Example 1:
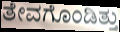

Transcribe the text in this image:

ತೇವಗೊಂಡಿತ್ತು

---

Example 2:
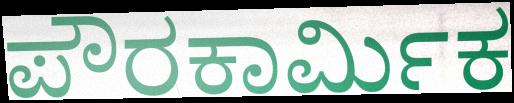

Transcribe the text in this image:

ಪೌರಕಾರ್ಮಿಕ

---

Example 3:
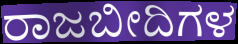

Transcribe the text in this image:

ರಾಜಬೀದಿಗಳ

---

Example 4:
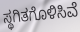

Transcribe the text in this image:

ಸ್ಥಗಿತಗೊಳಿಸಿವೆ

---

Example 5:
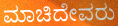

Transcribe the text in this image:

ಮಾಚಿದೇವರು